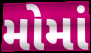
મોમાં